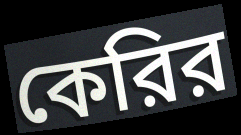
কেরির